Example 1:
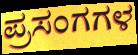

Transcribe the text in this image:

ಪ್ರಸಂಗಗಳ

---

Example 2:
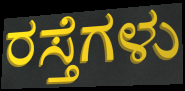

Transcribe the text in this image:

ರಸ್ತೆಗಳು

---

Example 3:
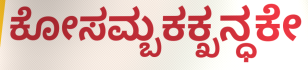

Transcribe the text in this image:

ಕೋಸಮ್ಬಕಕ್ಖನ್ಧಕೇ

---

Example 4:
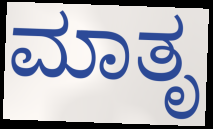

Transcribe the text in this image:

ಮಾತೃ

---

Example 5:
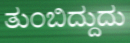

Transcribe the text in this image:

ತುಂಬಿದ್ದುದು